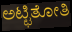
ಅಟ್ಟಿತೋತಿ